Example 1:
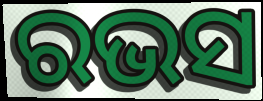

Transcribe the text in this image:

ରଭସ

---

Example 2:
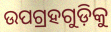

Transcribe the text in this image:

ଉପଗ୍ରହଗୁଡ଼ିକୁ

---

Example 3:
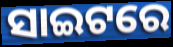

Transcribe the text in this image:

ସାଇଟରେ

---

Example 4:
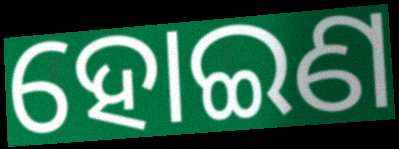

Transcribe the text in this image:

ହୋଇଣ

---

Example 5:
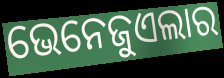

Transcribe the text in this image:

ଭେନେଜୁଏଲାର